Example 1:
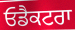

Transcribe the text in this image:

ਓਡੈਕਟਰਾ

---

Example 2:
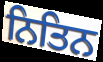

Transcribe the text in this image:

ਨਿਤਿਨ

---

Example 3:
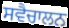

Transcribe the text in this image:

ਸਵੈਚਾਲਨ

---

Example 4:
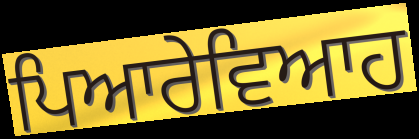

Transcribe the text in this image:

ਪਿਆਰੇਵਿਆਹ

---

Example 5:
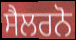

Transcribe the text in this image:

ਸੈਲਰਨੋ